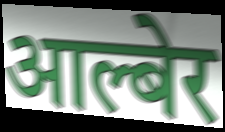
आल्बेर